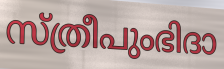
സ്ത്രീപുംഭിദാ